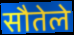
सौतेले